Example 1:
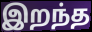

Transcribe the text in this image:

இறந்த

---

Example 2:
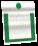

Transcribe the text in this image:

ப்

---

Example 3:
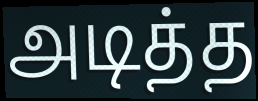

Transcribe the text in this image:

அடித்த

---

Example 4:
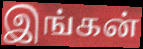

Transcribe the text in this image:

இங்கன்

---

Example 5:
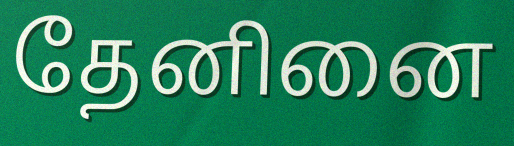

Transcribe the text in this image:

தேனினை